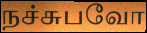
நச்சுபவோ